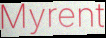
Myrent